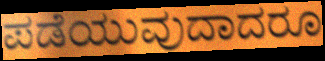
ಪಡೆಯುವುದಾದರೂ